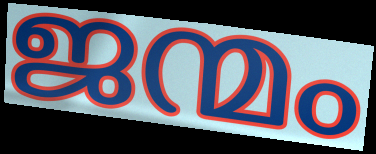
ജന്മം